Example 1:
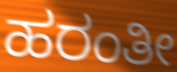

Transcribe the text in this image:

ಹರಂತೀ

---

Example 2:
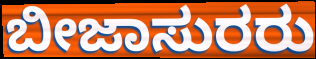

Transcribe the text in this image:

ಬೀಜಾಸುರರು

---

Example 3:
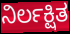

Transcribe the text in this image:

ನಿರ್ಲಕ್ಷಿತ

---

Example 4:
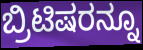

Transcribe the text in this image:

ಬ್ರಿಟಿಷರನ್ನೂ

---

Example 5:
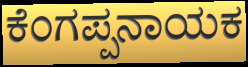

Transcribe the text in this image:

ಕೆಂಗಪ್ಪನಾಯಕ